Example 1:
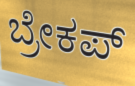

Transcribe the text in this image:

ಬ್ರೇಕಪ್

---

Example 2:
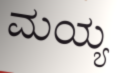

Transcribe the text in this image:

ಮಯ್ಯ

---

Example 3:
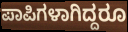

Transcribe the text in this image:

ಪಾಪಿಗಳಾಗಿದ್ದರೂ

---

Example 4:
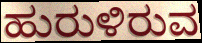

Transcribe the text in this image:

ಹುರುಳಿರುವ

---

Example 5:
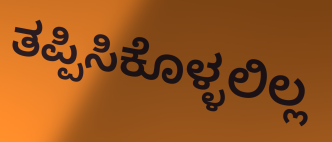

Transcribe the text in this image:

ತಪ್ಪಿಸಿಕೊಳ್ಳಲಿಲ್ಲ